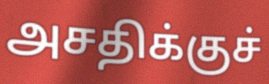
அசதிக்குச்